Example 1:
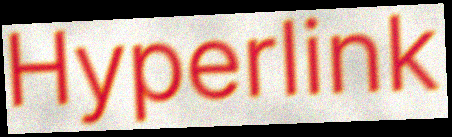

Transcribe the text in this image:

Hyperlink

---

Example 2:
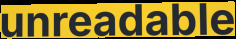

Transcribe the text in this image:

unreadable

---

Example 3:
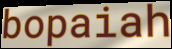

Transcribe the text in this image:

bopaiah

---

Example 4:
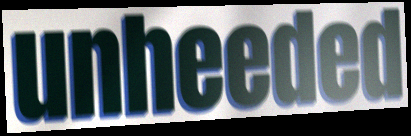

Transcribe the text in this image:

unheeded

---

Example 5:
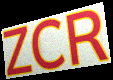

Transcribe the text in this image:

ZCR